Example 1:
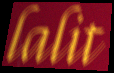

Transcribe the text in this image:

lalit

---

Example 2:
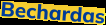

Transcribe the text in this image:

Bechardas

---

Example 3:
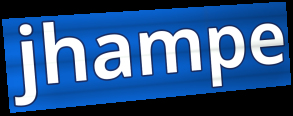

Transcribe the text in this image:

jhampe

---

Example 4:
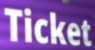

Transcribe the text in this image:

Ticket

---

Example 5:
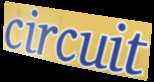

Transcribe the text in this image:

circuit